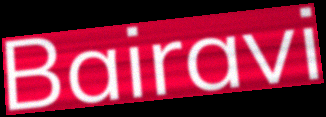
Bairavi